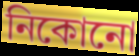
নিকোনো